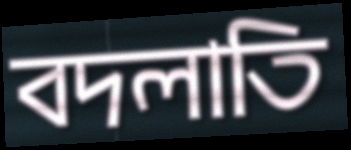
বদলাতি